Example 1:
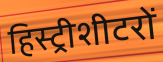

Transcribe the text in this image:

हिस्ट्रीशीटरों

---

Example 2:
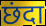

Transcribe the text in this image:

छंदा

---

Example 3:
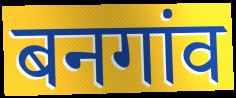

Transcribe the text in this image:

बनगांव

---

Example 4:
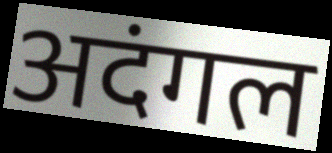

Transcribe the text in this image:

अदंगल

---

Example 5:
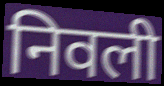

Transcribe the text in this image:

निवली